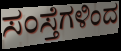
ಸಂಸ್ತೆಗಳಿಂದ